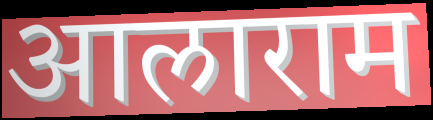
आलाराम